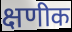
क्षणीक